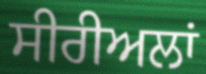
ਸੀਰੀਅਲਾਂ